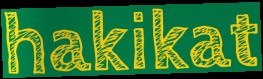
hakikat